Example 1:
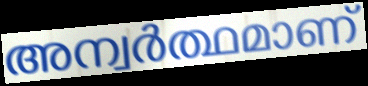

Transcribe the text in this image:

അന്വർത്ഥമാണ്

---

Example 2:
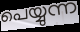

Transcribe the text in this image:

പെയ്യുന്ന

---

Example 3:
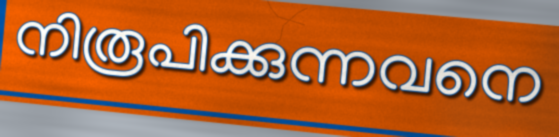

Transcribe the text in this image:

നിരൂപിക്കുന്നവനെ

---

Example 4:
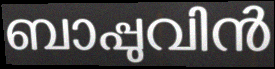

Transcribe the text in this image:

ബാപ്പുവിൻ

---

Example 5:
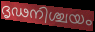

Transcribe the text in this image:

ദൃഢനിശ്ചയം